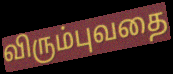
விரும்புவதை